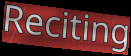
Reciting